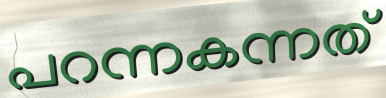
പറന്നകന്നത്